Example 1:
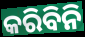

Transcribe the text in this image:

କରିବିନି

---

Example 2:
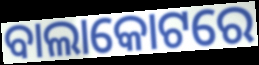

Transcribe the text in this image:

ବାଲାକୋଟରେ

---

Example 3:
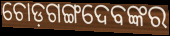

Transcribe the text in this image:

ଚୋଡ଼ଗଙ୍ଗଦେବଙ୍କର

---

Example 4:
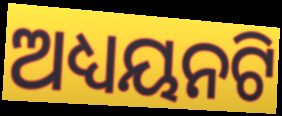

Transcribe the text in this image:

ଅଧ୍ୟୟନଟି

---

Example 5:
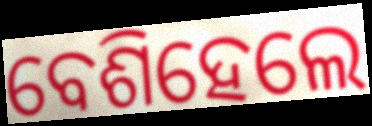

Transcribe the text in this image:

ବେଶିହେଲେ